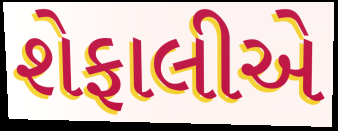
શેફાલીએ